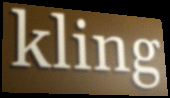
kling